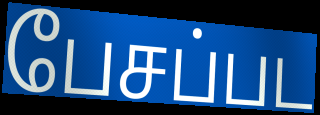
பேசப்பட